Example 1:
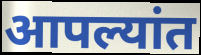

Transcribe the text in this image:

आपल्यांत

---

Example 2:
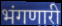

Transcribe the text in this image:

भंगणारी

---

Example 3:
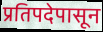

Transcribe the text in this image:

प्रतिपदेपासून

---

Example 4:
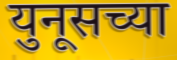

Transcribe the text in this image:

युनूसच्या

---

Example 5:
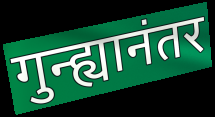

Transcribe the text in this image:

गुन्ह्यानंतर